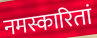
नमस्कारितां